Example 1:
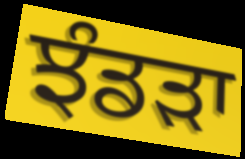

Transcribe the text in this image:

ਝੰਡੜਾ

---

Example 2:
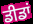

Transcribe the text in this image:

ਡੀਡਾਂ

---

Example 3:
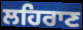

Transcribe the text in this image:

ਲਹਿਰਾਣ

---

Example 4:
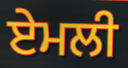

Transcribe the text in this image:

ਏਮਲੀ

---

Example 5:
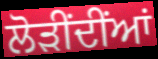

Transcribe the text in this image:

ਲੋੜੀਂਦੀਂਆਂ